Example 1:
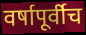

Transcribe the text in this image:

वर्षापूर्वीच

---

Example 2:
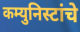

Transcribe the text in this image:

कम्युनिस्टांचे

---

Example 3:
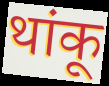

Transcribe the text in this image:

थांकू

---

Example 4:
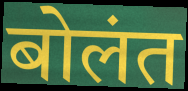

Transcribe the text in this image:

बोलंत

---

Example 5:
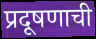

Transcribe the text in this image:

प्रदूषणाची